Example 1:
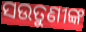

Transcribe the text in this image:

ସଉତୁଣୀଙ୍କ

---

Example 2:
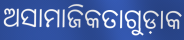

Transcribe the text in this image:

ଅସାମାଜିକତାଗୁଡ଼ାକ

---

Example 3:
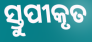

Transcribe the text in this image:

ସ୍ତୁପୀକୃତ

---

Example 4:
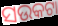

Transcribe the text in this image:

ସଉକଟା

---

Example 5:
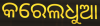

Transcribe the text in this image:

କରେଲଧୁଆ